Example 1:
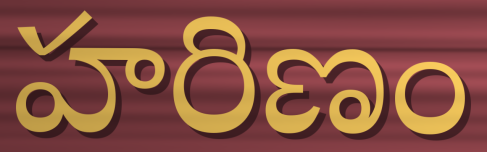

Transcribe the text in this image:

హరిణం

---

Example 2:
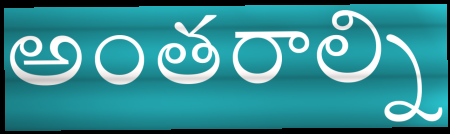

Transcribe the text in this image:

అంతరాల్ని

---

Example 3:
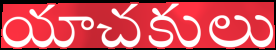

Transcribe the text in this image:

యాచకులు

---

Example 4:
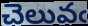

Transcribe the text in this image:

చెలువఁ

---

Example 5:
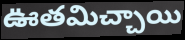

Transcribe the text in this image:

ఊతమిచ్చాయి